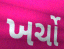
ખર્ચો